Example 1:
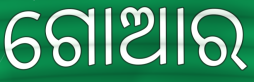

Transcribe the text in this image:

ଗୋଆର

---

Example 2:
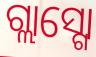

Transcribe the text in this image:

ଗ୍ଲାସ୍ଗୋ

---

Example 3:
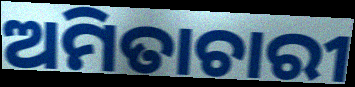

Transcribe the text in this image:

ଅମିତାଚାରୀ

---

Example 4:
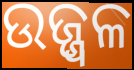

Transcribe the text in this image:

ଉଜ୍ଜ୍ବଳ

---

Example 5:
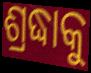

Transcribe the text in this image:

ଶ୍ରଦ୍ଧାକୁ